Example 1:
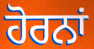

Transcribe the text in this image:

ਹੋਰਨਾਂ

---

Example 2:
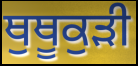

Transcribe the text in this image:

ਥੁਥੂਕੁੜੀ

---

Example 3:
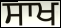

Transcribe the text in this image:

ਸਾਖ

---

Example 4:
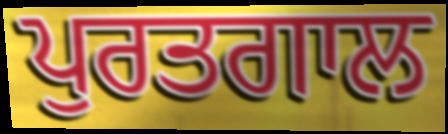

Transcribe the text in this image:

ਪੁਰਤਗਾਲ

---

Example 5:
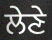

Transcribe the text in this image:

ਲੇਣੇ